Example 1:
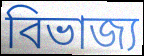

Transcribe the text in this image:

বিভাজ্য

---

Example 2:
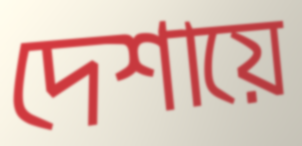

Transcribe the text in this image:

দেশায়ে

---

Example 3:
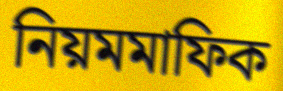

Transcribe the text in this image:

নিয়মমাফিক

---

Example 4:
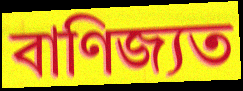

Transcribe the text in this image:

বাণিজ্যত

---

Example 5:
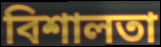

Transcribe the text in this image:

বিশালতা